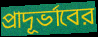
প্রাদূর্ভাবের